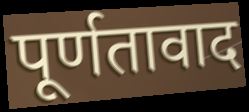
पूर्णतावाद